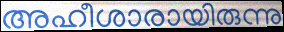
അഹീശാരായിരുന്നു